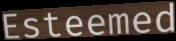
Esteemed